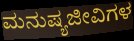
ಮನುಷ್ಯಜೀವಿಗಳ